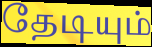
தேடியும்